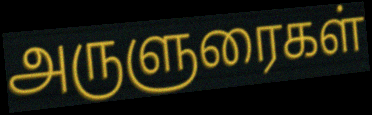
அருளுரைகள்